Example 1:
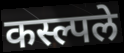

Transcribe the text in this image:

कस्ल्पले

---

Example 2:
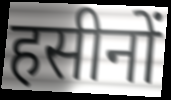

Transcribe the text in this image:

हसीनों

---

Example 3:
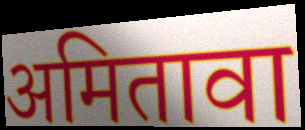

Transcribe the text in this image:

अमितावा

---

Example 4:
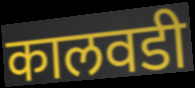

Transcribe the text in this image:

कालवडी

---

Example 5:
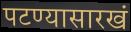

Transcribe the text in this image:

पटण्यासारखं